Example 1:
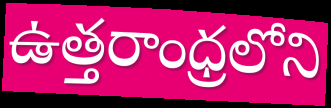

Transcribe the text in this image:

ఉత్తరాంధ్రలోని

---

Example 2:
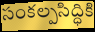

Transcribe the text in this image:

సంకల్పసిద్ధికి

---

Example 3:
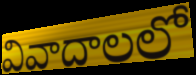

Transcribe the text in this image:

వివాదాలలో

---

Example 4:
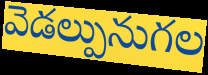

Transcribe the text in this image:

వెడల్పునుగల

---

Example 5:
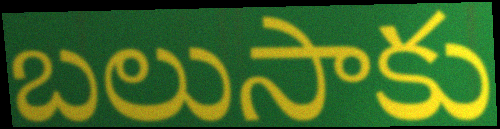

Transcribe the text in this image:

బలుసాకు